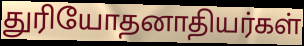
துரியோதனாதியர்கள்